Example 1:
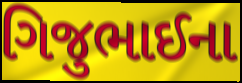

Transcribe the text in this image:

ગિજુભાઈના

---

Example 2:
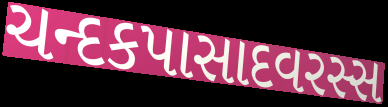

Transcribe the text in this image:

ચન્દકપાસાદવરસ્સ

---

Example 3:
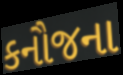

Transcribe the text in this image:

કનૌજના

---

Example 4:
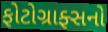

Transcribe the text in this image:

ફોટોગ્રાફ્સનો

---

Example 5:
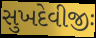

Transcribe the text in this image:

સુખદેવીજીઃ